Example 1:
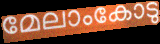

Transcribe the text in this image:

മേലാംകോടു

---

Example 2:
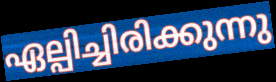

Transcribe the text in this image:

ഏല്പിച്ചിരിക്കുന്നു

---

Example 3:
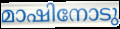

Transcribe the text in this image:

മാഷിനോടു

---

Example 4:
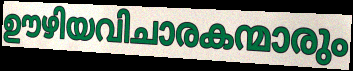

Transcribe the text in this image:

ഊഴിയവിചാരകന്മാരും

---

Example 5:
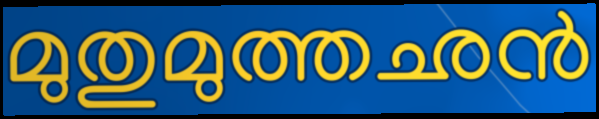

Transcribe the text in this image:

മുതുമുത്തഛൻ